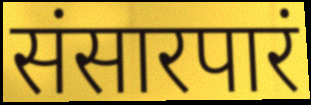
संसारपारं